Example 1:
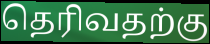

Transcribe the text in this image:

தெரிவதற்கு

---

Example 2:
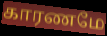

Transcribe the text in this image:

காரணமே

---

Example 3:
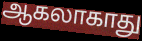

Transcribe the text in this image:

ஆகலாகாது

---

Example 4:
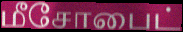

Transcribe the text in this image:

மீசோபைட்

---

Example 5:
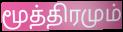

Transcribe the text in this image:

மூத்திரமும்